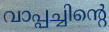
വാപ്പച്ചിന്റെ